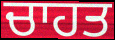
ਚਾਹਤ